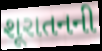
શૂરાતનની